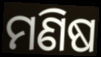
ମଣିଷ